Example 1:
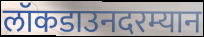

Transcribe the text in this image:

लॉकडाउनदरम्यान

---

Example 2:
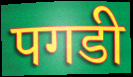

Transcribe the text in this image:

पगडी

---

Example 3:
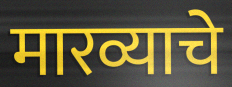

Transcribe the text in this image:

मारव्याचे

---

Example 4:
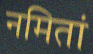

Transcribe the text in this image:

नमितां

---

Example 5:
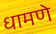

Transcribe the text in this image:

धामणे